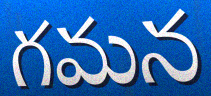
గమన